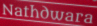
Nathdwara